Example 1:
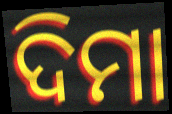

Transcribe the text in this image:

ଦିମା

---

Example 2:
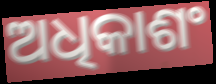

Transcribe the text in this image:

ଅଧିକାଶଂ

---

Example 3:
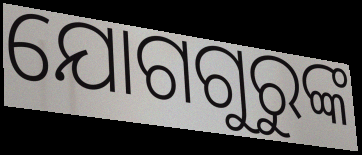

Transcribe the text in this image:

ଯୋଗଗୁରୁଙ୍କ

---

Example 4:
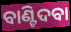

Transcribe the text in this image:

ବାଣ୍ଟିଦବା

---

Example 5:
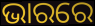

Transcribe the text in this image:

ଭାରରେ